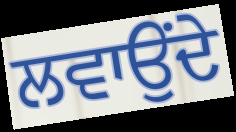
ਲਵਾਉਂਦੇ